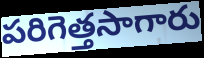
పరిగెత్తసాగారు